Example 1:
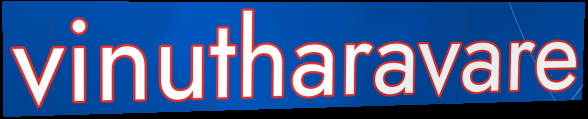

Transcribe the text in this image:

vinutharavare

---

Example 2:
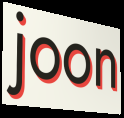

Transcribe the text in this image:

joon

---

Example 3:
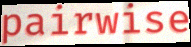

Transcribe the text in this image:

pairwise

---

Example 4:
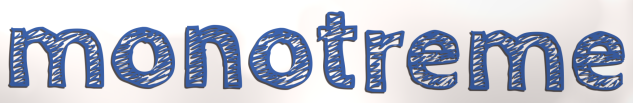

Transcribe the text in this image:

monotreme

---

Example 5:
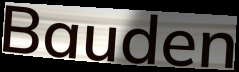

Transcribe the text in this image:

Bauden